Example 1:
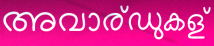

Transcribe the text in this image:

അവാര്ഡുകള്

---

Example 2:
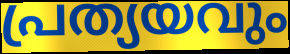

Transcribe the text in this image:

പ്രത്യയവും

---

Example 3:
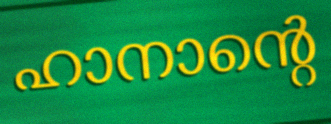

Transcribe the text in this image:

ഹാനാന്റെ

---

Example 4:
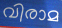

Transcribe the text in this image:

വിരാമ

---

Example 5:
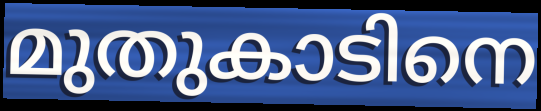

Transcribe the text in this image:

മുതുകാടിനെ